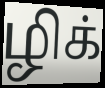
ழிக்